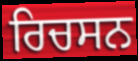
ਰਿਚਸਨ